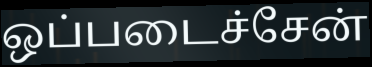
ஒப்படைச்சேன்